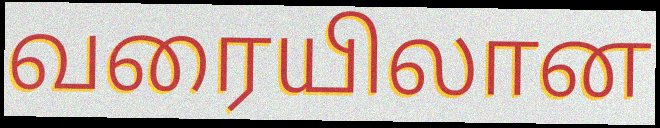
வரையிலான